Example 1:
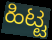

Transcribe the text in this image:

ಹಿಟ್ಟ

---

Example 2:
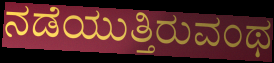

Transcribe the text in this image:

ನಡೆಯುತ್ತಿರುವಂಥ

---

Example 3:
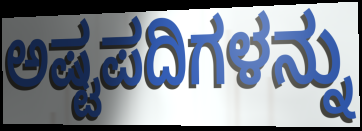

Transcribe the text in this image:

ಅಷ್ಟಪದಿಗಳನ್ನು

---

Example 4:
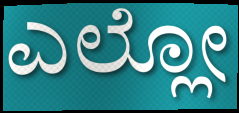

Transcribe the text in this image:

ಎಲ್ಲೋ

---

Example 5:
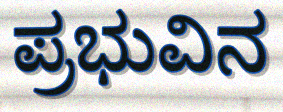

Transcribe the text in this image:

ಪ್ರಭುವಿನ